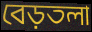
বেড়তলা